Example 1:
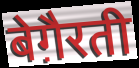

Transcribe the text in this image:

बेग़ैरती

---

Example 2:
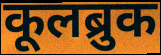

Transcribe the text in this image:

कूलब्रुक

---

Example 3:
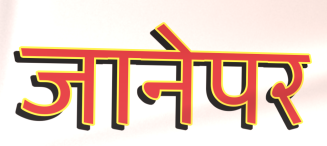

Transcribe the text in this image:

जानेपर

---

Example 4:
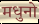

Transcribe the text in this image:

मधुनो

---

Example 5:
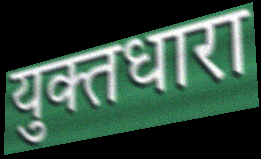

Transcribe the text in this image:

युक्तधारा